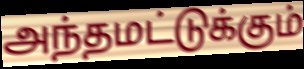
அந்தமட்டுக்கும்